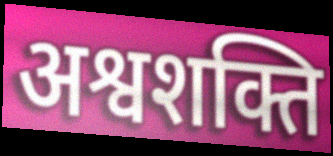
अश्वशक्ति